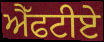
ਐੱਫਟੀਏ